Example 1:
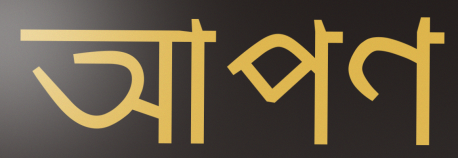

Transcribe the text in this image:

আপণ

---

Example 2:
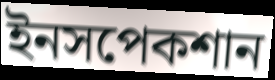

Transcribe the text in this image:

ইনসপেকশান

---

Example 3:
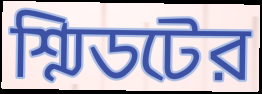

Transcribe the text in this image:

শ্মিডটের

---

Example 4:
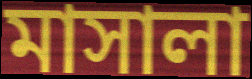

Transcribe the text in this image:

মাসালা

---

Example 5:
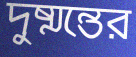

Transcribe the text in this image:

দুষ্মন্তের